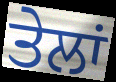
ਤੇਲਾਂ